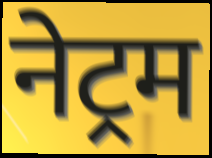
नेट्रम